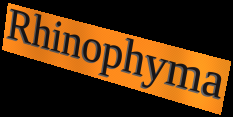
Rhinophyma